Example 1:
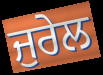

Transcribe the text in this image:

ਜੁਰੇਲ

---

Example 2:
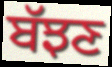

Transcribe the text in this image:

ਬੱਝਣ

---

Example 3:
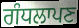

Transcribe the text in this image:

ਗੰਧਲਾਪਣ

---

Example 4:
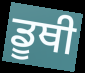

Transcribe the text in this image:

ਡੂਥੀ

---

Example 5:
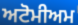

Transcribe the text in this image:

ਅਟੋਮੀਅਮ